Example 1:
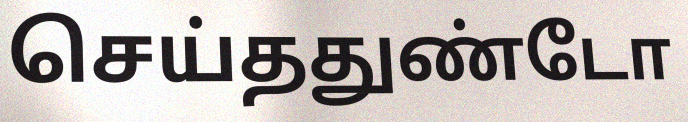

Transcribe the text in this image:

செய்ததுண்டோ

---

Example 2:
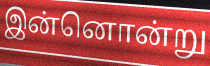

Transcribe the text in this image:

இன்னொன்று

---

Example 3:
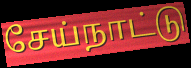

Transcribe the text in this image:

சேய்நாட்டு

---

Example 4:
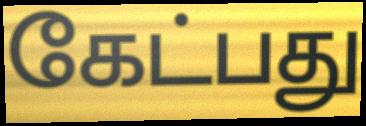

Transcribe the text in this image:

கேட்பது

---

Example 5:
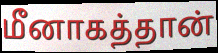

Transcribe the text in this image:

மீனாகத்தான்